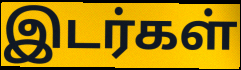
இடர்கள்